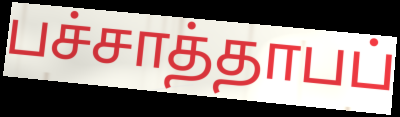
பச்சாத்தாபப்